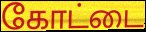
கோட்டை